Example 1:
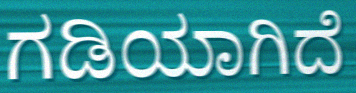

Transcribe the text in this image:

ಗಡಿಯಾಗಿದೆ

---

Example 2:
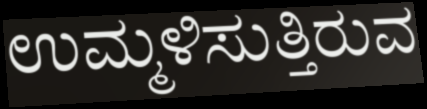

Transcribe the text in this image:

ಉಮ್ಮಳಿಸುತ್ತಿರುವ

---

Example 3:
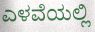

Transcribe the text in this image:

ಎಳವೆಯಲ್ಲಿ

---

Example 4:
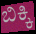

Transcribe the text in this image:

ಬಿಕ್ಕಿ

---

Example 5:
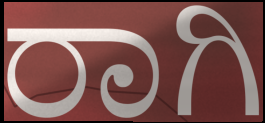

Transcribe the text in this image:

ರಾಗಿ